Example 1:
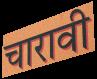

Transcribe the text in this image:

चारावी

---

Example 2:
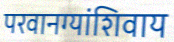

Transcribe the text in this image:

परवानग्यांशिवाय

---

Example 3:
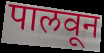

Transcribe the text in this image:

पालवून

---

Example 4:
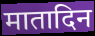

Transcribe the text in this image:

मातादिन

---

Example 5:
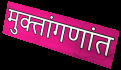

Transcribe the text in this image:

मुक्तांगणांत